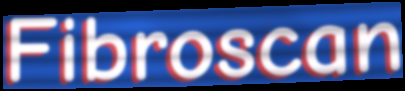
Fibroscan